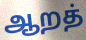
ஆறத்